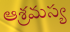
ఆశ్రమస్య